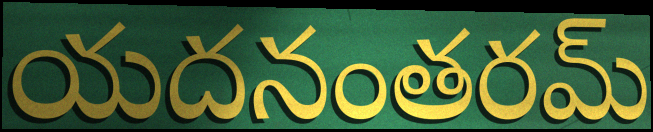
యదనంతరమ్